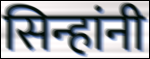
सिन्हांनी